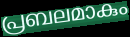
പ്രബലമാകും